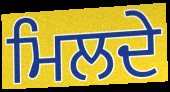
ਮਿਲਦੇ